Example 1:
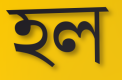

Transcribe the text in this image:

হল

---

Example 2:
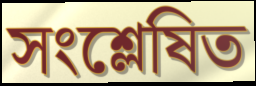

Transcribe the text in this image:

সংশ্লেষিত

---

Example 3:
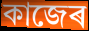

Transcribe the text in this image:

কাজেৰ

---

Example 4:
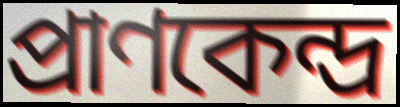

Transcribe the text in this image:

প্ৰাণকেন্দ্ৰ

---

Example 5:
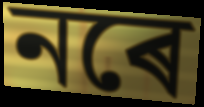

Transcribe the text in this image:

নৰে